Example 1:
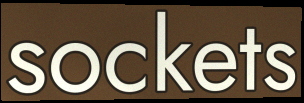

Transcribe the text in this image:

sockets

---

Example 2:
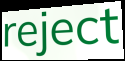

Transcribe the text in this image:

reject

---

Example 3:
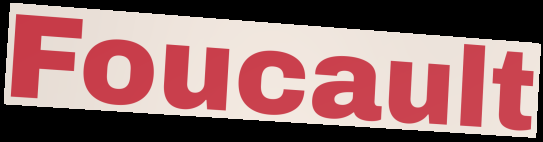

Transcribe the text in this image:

Foucault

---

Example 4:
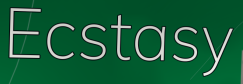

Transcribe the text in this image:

Ecstasy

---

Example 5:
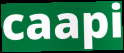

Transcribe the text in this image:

caapi